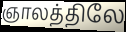
ஞாலத்திலே